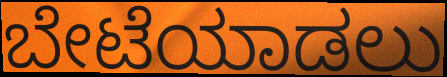
ಬೇಟೆಯಾಡಲು